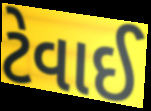
ટેવાઈ